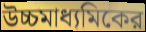
উচ্চমাধ্যমিকের